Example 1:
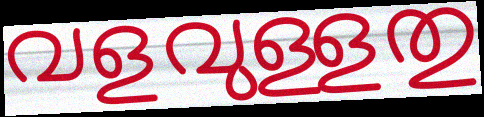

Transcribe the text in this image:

വളവുള്ളതു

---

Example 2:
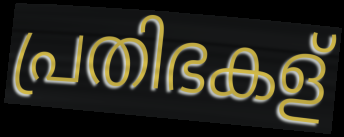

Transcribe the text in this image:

പ്രതിഭകള്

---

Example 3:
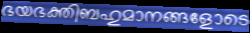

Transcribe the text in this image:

ഭയഭക്തിബഹുമാനങ്ങളോടെ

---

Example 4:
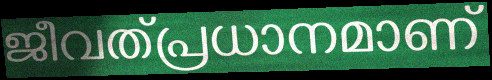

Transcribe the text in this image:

ജീവത്പ്രധാനമാണ്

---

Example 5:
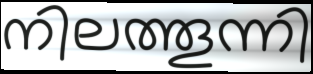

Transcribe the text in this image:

നിലത്തൂന്നി